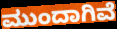
ಮುಂದಾಗಿವೆ